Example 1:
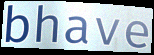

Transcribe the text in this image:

bhave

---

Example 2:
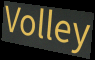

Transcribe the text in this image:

Volley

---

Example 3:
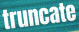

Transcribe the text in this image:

truncate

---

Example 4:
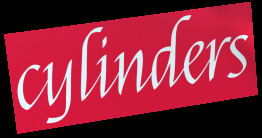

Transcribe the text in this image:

cylinders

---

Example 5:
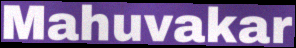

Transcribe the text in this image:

Mahuvakar